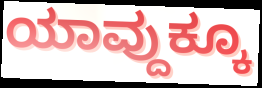
ಯಾವ್ದುಕ್ಕೂ